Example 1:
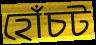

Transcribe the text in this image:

হোঁচট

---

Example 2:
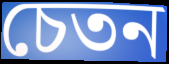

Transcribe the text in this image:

চেতন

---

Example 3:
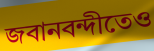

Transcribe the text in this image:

জবানবন্দীতেও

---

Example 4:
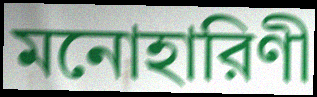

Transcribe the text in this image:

মনোহারিণী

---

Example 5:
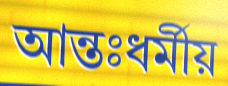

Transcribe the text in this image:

আন্তঃধর্মীয়